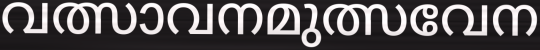
വത്സാവനമുത്സവേന